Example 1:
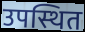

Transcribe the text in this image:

उपस्थित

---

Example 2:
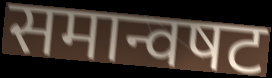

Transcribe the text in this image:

समान्वषट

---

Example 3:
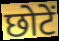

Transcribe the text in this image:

छोटें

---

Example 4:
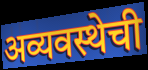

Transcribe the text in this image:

अव्यवस्थेची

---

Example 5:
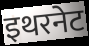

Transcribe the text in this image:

इथरनेट